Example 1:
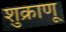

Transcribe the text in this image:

शुक्राणू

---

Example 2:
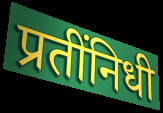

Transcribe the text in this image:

प्रतींनिधी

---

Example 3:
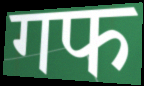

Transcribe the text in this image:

गफ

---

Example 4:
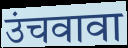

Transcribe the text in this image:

उंचवावा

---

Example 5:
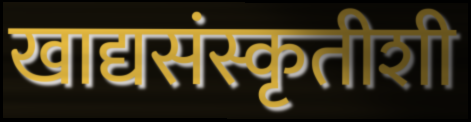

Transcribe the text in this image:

खाद्यसंस्कृतीशी